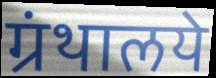
ग्रंथालये